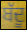
ਬੱਦੂ